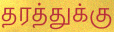
தரத்துக்கு